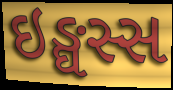
ઇઙ્ઘસ્સ